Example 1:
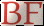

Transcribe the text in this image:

BF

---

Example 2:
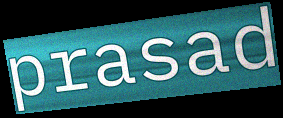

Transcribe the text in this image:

prasad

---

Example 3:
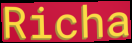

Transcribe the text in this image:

Richa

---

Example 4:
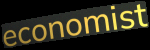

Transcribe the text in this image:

economist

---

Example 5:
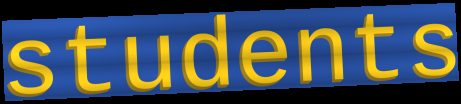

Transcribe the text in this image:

students